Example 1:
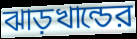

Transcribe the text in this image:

ঝাড়খান্ডের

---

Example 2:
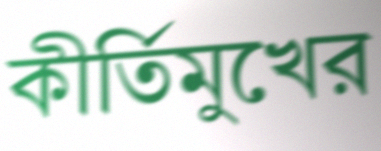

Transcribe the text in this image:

কীর্তিমুখের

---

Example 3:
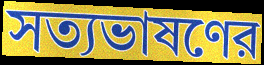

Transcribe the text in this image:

সত্যভাষণের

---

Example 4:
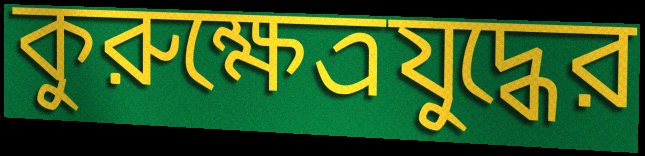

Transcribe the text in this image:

কুরুক্ষেত্রযুদ্ধের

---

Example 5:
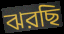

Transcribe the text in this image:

ঝরছি